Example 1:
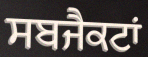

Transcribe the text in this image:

ਸਬਜੈਕਟਾਂ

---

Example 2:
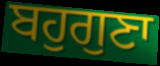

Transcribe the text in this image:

ਬਹੁਗੁਣਾ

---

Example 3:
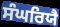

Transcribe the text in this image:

ਸੰਘਰਿਯੈ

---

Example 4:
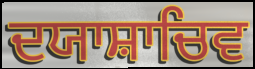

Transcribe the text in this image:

ਦਯਾਸ਼ਾਚਿਵ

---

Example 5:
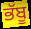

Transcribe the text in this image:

ਭੱਬੂ